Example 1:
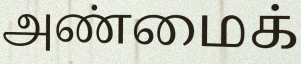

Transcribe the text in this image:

அண்மைக்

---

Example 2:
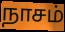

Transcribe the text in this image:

நாசம்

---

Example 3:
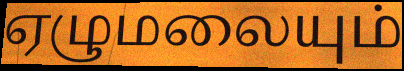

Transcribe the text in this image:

ஏழுமலையும்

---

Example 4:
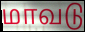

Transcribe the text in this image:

மாவடு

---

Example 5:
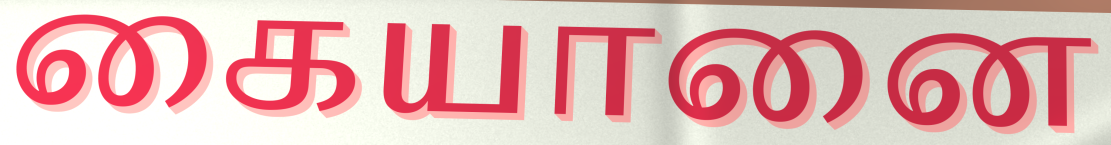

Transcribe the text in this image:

கையானை